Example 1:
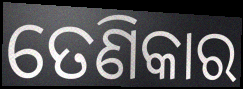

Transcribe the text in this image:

ତେଣିକାର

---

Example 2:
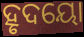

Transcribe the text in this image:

ହୃଦୟୋ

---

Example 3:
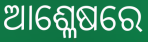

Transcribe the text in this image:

ଆଶ୍ଳେଷରେ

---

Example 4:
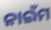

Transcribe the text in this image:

ନାଇଁମ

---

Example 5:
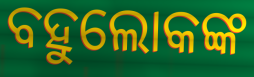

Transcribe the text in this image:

ବହୁଲୋକଙ୍କ